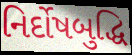
નિર્દોષબુદ્ધિ